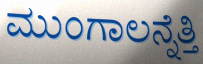
ಮುಂಗಾಲನ್ನೆತ್ತಿ